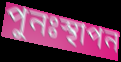
পুনঃস্থাপন